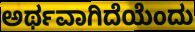
ಅರ್ಥವಾಗಿದೆಯೆಂದು